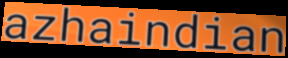
azhaindian